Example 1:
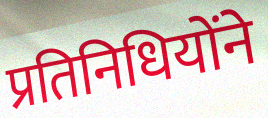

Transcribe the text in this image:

प्रतिनिधियोंने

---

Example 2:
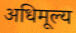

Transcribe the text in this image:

अधिमूल्य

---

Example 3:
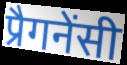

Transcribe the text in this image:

प्रैगनेंसी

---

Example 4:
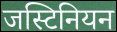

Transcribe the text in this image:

जस्टिनियन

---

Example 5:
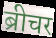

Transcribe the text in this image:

ब्रीचर